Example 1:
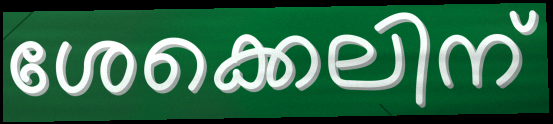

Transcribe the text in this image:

ശേക്കെലിന്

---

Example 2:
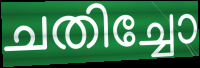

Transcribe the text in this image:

ചതിച്ചോ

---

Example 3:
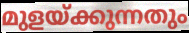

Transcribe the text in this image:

മുളയ്ക്കുന്നതും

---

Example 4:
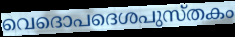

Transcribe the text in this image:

വെദൊപദെശപുസ്തകം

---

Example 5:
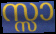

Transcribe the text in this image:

സ്സാ